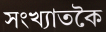
সংখ্যাতকৈ